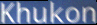
Khukon